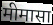
मीमासा